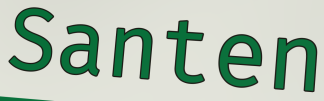
Santen